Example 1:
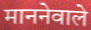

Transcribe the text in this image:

माननेवाले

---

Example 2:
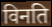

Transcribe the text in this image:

विनति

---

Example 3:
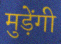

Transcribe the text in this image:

मुड़ेंगी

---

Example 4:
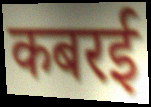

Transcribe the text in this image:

कबरई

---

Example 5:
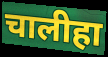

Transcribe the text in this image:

चालीहा